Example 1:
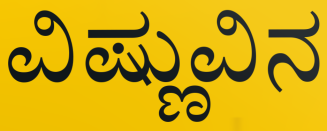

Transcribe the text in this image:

ವಿಷ್ಣುವಿನ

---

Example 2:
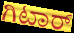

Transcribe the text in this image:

ಗಿಟಾರ್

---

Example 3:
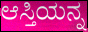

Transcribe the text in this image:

ಆಸ್ತಿಯನ್ನ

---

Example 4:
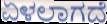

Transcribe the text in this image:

ಏಳಲಾಗದೆ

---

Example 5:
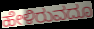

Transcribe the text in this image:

ಹೇಳಿರುವದೂ